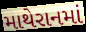
માથેરાનમાં